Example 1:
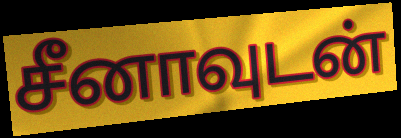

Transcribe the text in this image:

சீனாவுடன்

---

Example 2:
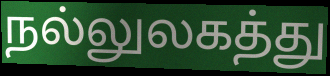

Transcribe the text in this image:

நல்லுலகத்து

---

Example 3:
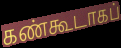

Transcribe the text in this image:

கண்கூடாகப்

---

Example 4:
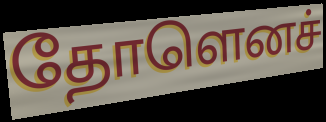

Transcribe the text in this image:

தோளெனச்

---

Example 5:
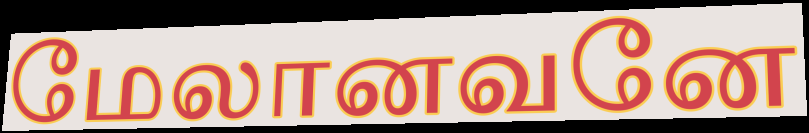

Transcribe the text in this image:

மேலானவனே